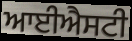
ਆਈਐਸਟੀ